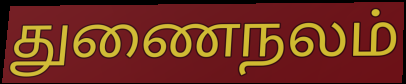
துணைநலம்